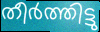
തീർത്തിട്ടു